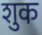
शुक